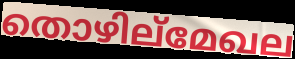
തൊഴില്മേഖല